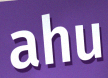
ahu